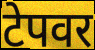
टेपवर